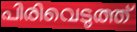
പിരിവെടുത്ത്